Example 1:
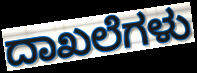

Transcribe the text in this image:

ದಾಖಲೆಗಳು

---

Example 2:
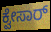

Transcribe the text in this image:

ಕ್ವೇಸಾರ್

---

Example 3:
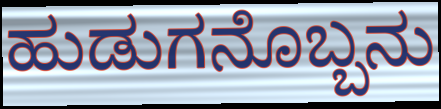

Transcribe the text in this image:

ಹುಡುಗನೊಬ್ಬನು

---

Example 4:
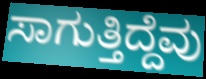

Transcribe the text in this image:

ಸಾಗುತ್ತಿದ್ದೆವು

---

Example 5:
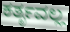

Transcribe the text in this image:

ಕರ್ತೃವಲ್ಲ